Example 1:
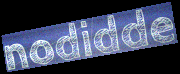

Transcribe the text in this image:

nodidde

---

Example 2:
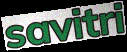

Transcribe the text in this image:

savitri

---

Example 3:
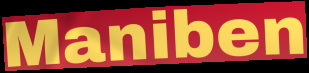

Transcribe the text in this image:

Maniben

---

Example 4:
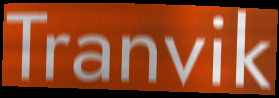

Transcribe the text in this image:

Tranvik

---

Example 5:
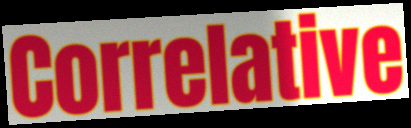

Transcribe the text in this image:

Correlative